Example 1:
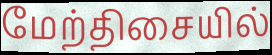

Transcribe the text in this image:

மேற்திசையில்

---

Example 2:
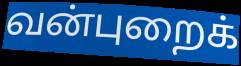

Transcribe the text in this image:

வன்புறைக்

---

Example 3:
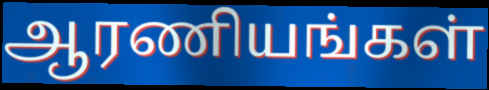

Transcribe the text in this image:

ஆரணியங்கள்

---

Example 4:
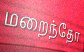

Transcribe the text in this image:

மறைந்தோ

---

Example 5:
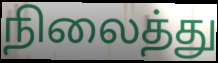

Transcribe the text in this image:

நிலைத்து